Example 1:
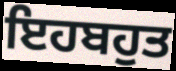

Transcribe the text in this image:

ਇਹਬਹੁਤ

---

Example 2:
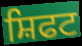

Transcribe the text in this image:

ਸ਼ਿਫਟ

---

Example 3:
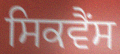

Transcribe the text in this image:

ਸਿਕਵੈਂਸ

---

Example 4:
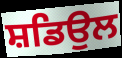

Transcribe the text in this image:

ਸ਼ਡਿਉਲ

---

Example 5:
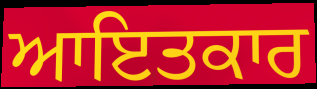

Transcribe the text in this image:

ਆਇਤਕਾਰ